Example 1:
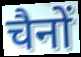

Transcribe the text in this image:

चैनों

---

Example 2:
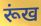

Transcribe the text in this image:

रूंख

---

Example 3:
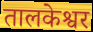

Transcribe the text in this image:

तालकेश्वर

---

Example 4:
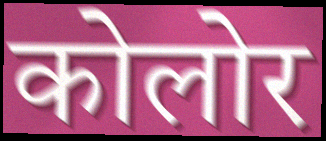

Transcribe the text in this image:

कोलोर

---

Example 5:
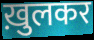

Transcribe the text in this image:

ख़ुलकर